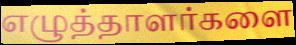
எழுத்தாளர்களை